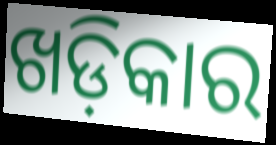
ଖଡ଼ିକାର